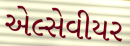
એલ્સેવીયર